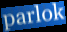
parlok